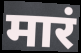
मारं